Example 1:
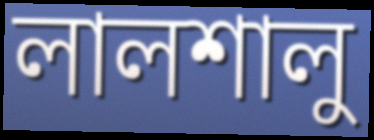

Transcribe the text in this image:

লালশালু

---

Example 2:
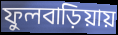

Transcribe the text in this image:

ফুলবাড়িয়ায়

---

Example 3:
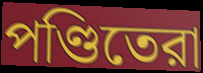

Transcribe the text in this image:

পণ্ডিতেরা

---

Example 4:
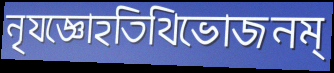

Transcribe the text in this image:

নৃযজ্ঞোহতিথিভোজনম্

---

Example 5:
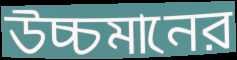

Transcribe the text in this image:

উচ্চমানের